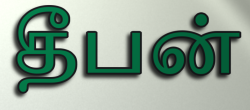
தீபன்